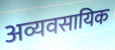
अव्यवसायिक